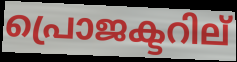
പ്രൊജക്ടറില്